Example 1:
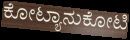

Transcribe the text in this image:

ಕೋಟ್ಯಾನುಕೋಟಿ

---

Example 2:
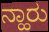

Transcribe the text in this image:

ನ್ಹಾರು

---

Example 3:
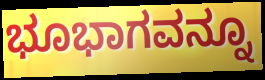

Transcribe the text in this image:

ಭೂಭಾಗವನ್ನೂ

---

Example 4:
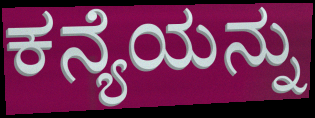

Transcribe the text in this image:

ಕನ್ಯೆಯನ್ನು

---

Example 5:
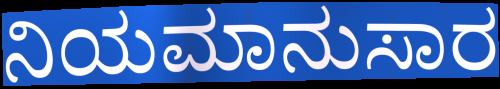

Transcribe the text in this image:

ನಿಯಮಾನುಸಾರ